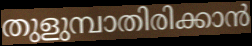
തുളുമ്പാതിരിക്കാൻ